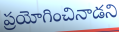
ప్రయోగించినాడని